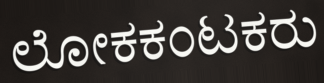
ಲೋಕಕಂಟಕರು